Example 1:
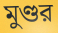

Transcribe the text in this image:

মুণ্ডর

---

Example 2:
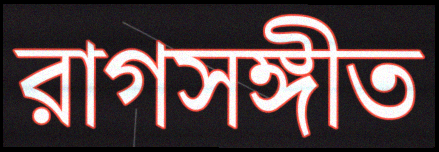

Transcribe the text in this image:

রাগসঙ্গীত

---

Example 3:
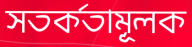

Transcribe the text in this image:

সতর্কতামূলক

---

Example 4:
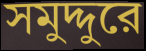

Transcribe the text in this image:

সমুদ্দুরে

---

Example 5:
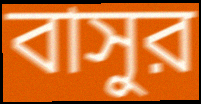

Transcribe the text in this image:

বাসুর